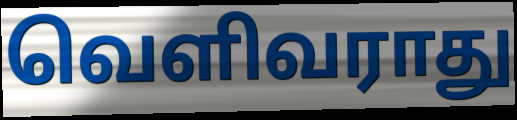
வெளிவராது